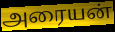
அரையன்